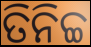
ତିନିଚ୍ଚ